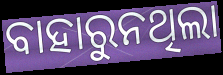
ବାହାରୁନଥିଲା